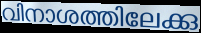
വിനാശത്തിലേക്കു